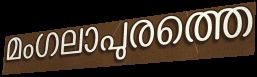
മംഗലാപുരത്തെ